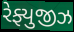
રેફ્યુજીઝ